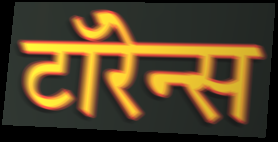
टॉरेन्स